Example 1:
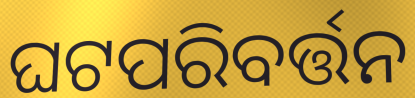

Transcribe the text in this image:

ଘଟପରିବର୍ତ୍ତନ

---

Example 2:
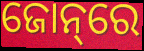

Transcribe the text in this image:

ଜୋନ୍‌ରେ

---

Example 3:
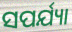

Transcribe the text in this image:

ସପର୍ଯ୍ୟା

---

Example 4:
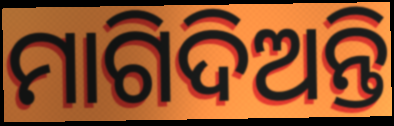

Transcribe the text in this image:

ମାଗିଦିଅନ୍ତି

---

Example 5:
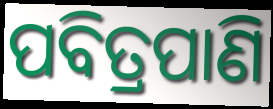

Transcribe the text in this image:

ପବିତ୍ରପାଣି